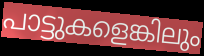
പാട്ടുകളെങ്കിലും